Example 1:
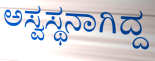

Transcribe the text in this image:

ಅಸ್ವಸ್ಥನಾಗಿದ್ದ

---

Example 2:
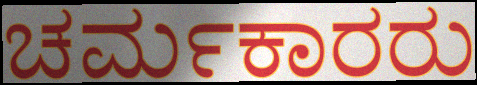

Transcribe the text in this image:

ಚರ್ಮಕಾರರು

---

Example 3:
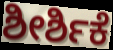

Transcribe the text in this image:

ಶೀರ್ಶಿಕೆ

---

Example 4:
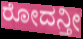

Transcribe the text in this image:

ರೋದನ್ತೀ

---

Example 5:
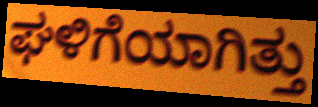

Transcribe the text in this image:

ಘಳಿಗೆಯಾಗಿತ್ತು